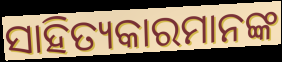
ସାହିତ୍ୟକାରମାନଙ୍କ